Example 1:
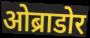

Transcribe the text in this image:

ओब्राडोर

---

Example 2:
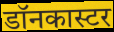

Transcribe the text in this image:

डॉनकास्टर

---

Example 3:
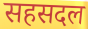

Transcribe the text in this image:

सहसदल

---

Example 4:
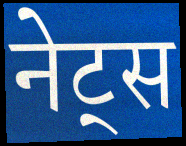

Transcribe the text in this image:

नेट्स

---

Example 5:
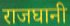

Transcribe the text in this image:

राजघानी